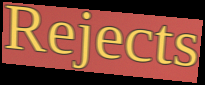
Rejects